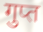
गुप्त